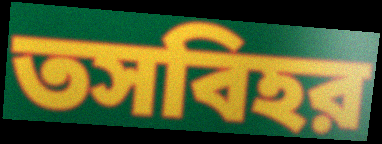
তসবিহর